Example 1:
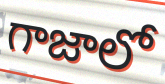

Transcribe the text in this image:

గాజాలో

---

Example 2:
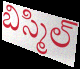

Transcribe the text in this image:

బిస్మిల్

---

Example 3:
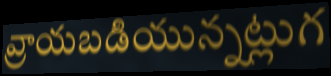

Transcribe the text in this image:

వ్రాయబడియున్నట్లుగ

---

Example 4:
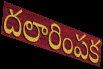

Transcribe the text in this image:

దలారింపక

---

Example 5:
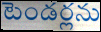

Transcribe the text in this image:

టెండర్లను